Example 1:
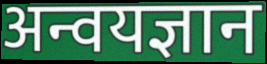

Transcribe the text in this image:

अन्वयज्ञान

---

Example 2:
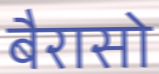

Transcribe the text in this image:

बैरासो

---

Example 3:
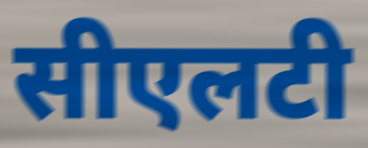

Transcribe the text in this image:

सीएलटी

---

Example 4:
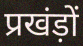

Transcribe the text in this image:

प्रखंड़ों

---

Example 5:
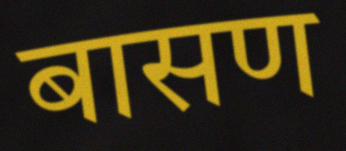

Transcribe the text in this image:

बासण